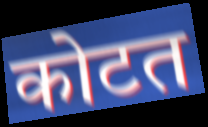
कोटत